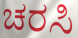
ಚರಸಿ